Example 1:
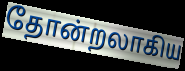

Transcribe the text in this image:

தோன்றலாகிய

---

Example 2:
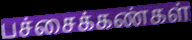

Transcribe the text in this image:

பச்சைக்கண்கள்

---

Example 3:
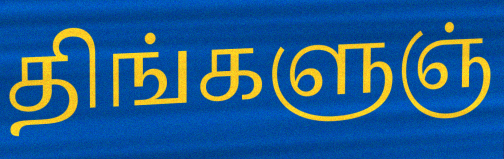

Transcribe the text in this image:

திங்களுஞ்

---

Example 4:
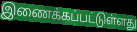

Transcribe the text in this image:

இணைக்கப்பட்டுள்ளது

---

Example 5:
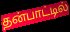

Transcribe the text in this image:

தன்பாட்டில்